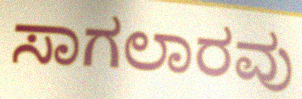
ಸಾಗಲಾರವು